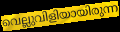
വെല്ലുവിളിയായിരുന്ന